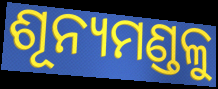
ଶୂନ୍ୟମଣ୍ଡଳୁ